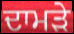
ਦਾਮੜੇ